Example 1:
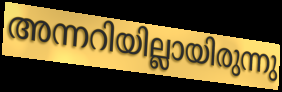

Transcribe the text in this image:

അന്നറിയില്ലായിരുന്നു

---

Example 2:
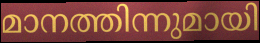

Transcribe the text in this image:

മാനത്തിന്നുമായി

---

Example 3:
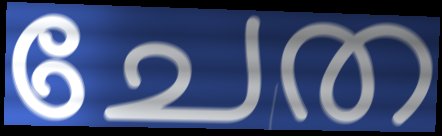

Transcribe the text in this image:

ചേത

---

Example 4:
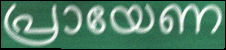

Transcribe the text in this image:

പ്രായേണ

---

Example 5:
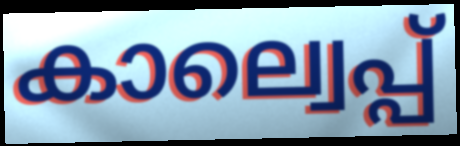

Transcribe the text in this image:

കാല്വെപ്പ്